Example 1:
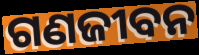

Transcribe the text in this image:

ଗଣଜୀବନ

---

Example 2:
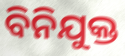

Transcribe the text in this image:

ବିନିଯୁକ୍ତ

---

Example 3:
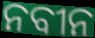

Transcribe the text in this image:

ନବୀନ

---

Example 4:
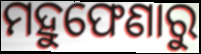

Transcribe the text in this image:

ମହୁଫେଣାରୁ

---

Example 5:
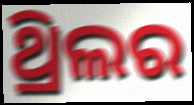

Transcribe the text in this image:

ଥ୍ରିଲର